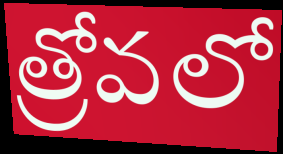
త్రోవలో